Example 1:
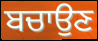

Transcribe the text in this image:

ਬਚਾਉਣ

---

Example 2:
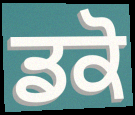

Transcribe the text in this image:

ਡਕੋ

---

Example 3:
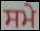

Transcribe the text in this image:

ਸਮੇ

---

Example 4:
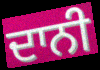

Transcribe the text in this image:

ਦਾਨੀ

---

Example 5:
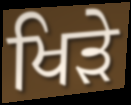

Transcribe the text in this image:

ਖਿੜੇ